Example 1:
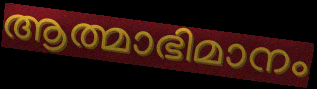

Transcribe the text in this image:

ആത്മാഭിമാനം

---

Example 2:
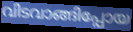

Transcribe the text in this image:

വിടവാങ്ങിപ്പോയ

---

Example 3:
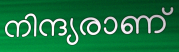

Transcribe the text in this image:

നിന്ദ്യരാണ്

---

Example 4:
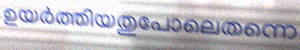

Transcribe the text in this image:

ഉയർത്തിയതുപോലെതന്നെ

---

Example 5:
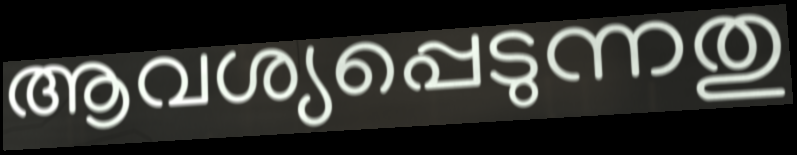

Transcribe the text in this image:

ആവശ്യപ്പെടുന്നതു